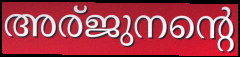
അര്ജുനന്റെ